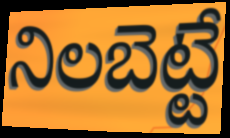
నిలబెట్టే